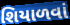
શિયાળવાં